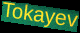
Tokayev